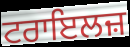
ਟਰਾਇਲਜ਼